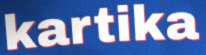
kartika